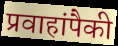
प्रवाहांपैकी